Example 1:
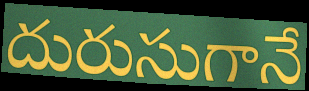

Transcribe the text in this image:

దురుసుగానే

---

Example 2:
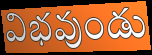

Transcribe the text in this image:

విభవుండు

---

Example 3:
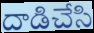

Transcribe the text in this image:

దాడిచేసి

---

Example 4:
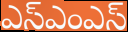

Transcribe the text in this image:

ఎస్ఎంఎస్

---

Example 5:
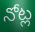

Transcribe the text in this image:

నోట్ల